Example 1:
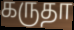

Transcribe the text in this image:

கருதா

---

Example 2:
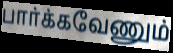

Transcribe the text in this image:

பார்க்கவேணும்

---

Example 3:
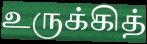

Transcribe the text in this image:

உருக்கித்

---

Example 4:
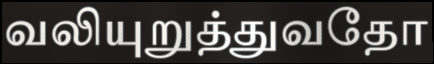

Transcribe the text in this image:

வலியுறுத்துவதோ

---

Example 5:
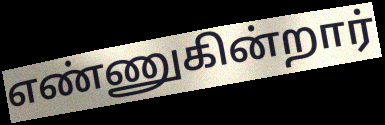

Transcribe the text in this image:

எண்ணுகின்றார்